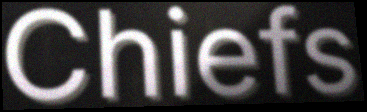
Chiefs